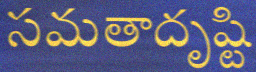
సమతాదృష్టి